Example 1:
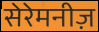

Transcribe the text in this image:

सेरेमनीज़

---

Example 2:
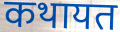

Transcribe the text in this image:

कथायत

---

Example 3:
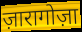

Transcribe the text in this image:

ज़ारागोज़ा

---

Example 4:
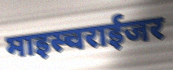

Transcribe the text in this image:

माइस्चराईजर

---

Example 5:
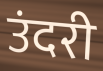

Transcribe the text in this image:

उंदरी